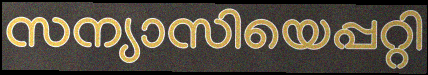
സന്യാസിയെപ്പറ്റി